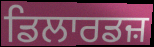
ਡਿਲਾਰਡਜ਼